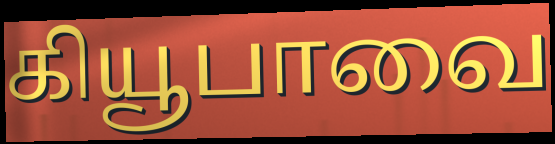
கியூபாவை